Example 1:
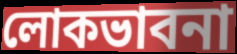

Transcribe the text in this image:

লোকভাবনা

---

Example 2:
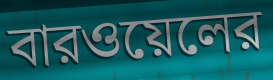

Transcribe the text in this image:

বারওয়েলের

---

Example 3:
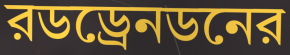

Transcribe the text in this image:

রডড্রেনডনের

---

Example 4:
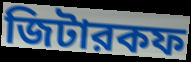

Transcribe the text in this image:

জিটারকফ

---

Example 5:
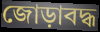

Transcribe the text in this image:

জোড়াবদ্ধ